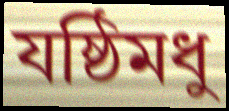
যষ্ঠিমধু